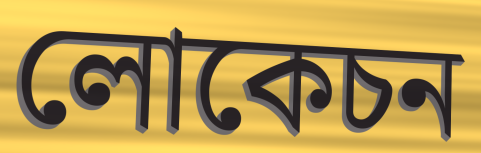
লোকেচন